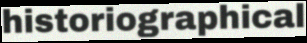
historiographical